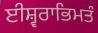
ਈਸ਼੍ਵਰਾਭਿਮਤੰ